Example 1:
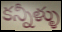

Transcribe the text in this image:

కన్నీళ్ళు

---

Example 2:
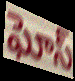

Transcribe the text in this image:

ఘోస్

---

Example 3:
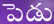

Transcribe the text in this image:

పెడు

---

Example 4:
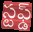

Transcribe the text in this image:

స్టఫ్డ్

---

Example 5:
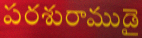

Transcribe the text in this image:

పరశురాముడై